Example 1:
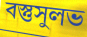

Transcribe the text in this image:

বস্তুসুলভ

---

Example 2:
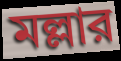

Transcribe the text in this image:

মল্লার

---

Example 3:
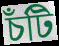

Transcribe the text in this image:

চঁটি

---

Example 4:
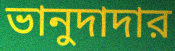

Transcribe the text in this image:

ভানুদাদার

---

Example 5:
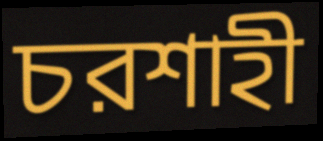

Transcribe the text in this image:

চরশাহী